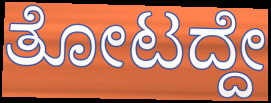
ತೋಟದ್ದೇ